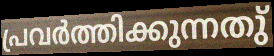
പ്രവർത്തിക്കുന്നതു്